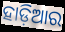
ହାଡ଼ିଆର